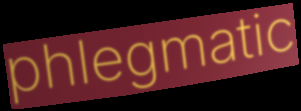
phlegmatic